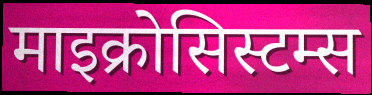
माइक्रोसिस्टम्स